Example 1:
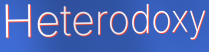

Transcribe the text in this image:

Heterodoxy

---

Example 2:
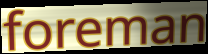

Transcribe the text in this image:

foreman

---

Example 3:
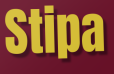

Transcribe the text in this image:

Stipa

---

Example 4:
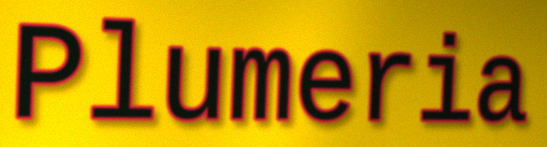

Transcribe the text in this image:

Plumeria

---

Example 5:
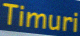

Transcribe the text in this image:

Timuri